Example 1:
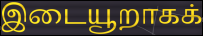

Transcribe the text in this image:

இடையூறாகக்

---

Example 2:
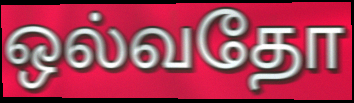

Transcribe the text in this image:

ஒல்வதோ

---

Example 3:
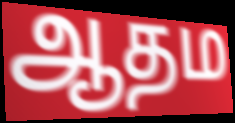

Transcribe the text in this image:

ஆதம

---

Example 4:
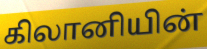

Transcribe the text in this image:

கிலானியின்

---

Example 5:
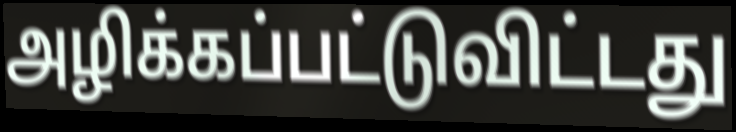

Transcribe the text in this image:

அழிக்கப்பட்டுவிட்டது